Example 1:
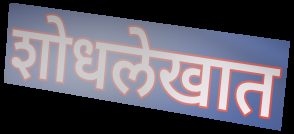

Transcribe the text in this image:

शोधलेखात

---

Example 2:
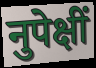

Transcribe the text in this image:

नुपेक्षीं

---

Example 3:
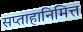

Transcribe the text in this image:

सप्ताहानिमित्त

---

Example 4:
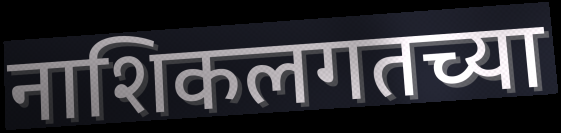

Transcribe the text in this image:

नाशिकलगतच्या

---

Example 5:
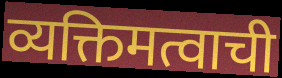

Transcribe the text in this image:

व्यक्तिमत्वाची